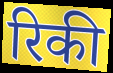
रिकी